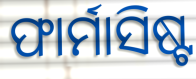
ଫାର୍ମାସିଷ୍ଟ